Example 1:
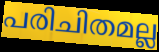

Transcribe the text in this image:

പരിചിതമല്ല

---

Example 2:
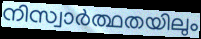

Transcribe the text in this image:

നിസ്വാർത്ഥതയിലും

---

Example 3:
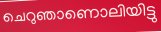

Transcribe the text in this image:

ചെറുഞാണൊലിയിട്ടു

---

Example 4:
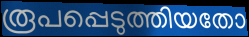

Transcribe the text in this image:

രൂപപ്പെടുത്തിയതോ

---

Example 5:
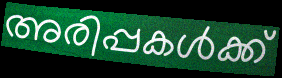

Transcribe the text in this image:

അരിപ്പകൾക്ക്